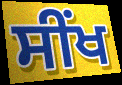
ਸੀਂਖ